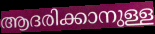
ആദരിക്കാനുള്ള